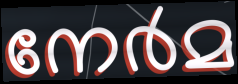
നേർമ